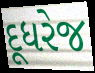
દૂધરેજ